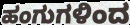
ಹಂಗುಗಳಿಂದ